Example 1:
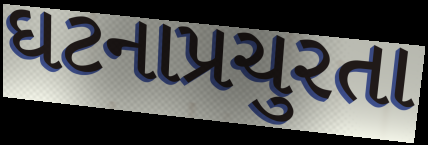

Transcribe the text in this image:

ઘટનાપ્રચુરતા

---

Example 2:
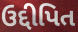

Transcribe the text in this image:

ઉદ્દીપિત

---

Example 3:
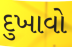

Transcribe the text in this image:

દુખાવો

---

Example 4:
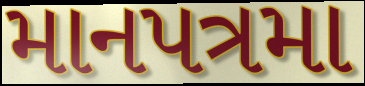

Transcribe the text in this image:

માનપત્રમા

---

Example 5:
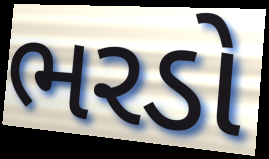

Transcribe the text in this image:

ભરડો